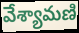
వేశ్యామణి